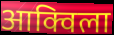
आक्विला